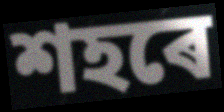
শহৰে